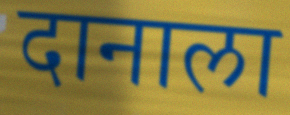
दानाला